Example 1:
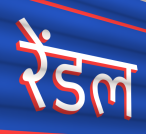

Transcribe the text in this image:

रेंडल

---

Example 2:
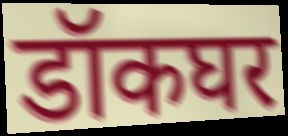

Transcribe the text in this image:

डॉकघर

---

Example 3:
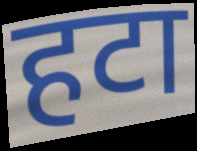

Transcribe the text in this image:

हटा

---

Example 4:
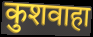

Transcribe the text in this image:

कुशवाहा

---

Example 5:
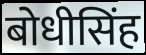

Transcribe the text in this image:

बोधीसिंह